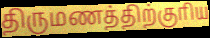
திருமணத்திற்குரிய